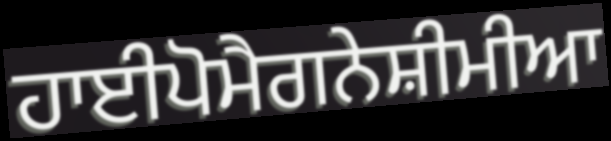
ਹਾਈਪੋਮੈਗਨੇਸ਼ੀਮੀਆ